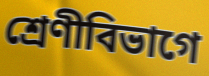
শ্রেণীবিভাগে